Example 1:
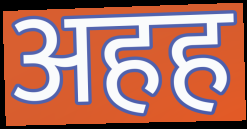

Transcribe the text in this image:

अहह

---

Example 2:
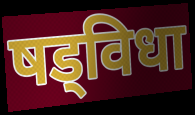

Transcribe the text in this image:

षड्विधा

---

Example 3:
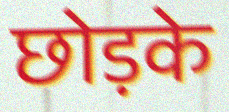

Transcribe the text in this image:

छोड़के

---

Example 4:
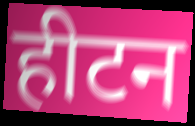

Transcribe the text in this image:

हीटन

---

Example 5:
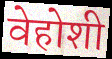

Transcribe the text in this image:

वेहोशी